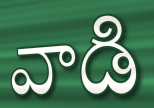
వాడి